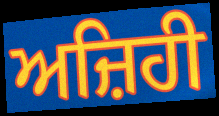
ਅਜ਼ਿਹੀ